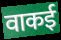
वाकई